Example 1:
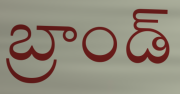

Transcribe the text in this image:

బ్రాండ్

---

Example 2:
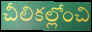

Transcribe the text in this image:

చీలికల్లోంచి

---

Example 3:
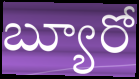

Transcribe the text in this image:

బ్యూరో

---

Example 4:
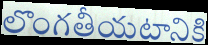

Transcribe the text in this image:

లొంగతీయటానికి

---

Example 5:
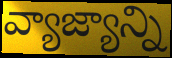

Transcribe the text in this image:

వ్యాజ్యాన్ని